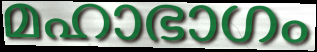
മഹാഭാഗം